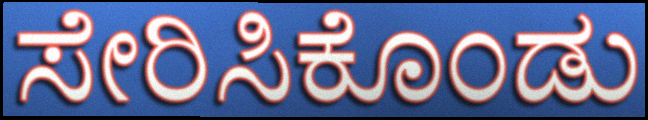
ಸೇರಿಸಿಕೊಂಡು